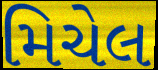
મિચેલ